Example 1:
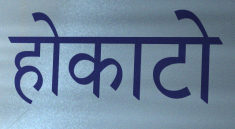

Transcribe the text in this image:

होकाटो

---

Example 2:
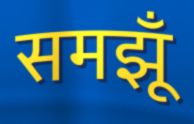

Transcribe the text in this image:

समझूँ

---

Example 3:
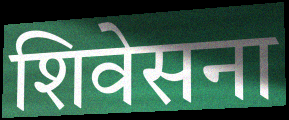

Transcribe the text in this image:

शिवेसना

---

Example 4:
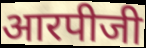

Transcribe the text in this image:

आरपीजी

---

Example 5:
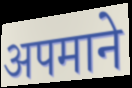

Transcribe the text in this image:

अपमाने